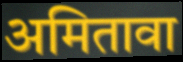
अमितावा